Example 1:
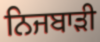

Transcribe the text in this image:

ਨਿਜਬਾੜੀ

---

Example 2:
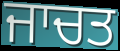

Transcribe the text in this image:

ਜਾਚਤ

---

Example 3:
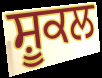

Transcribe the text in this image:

ਸ਼ੂਕਲ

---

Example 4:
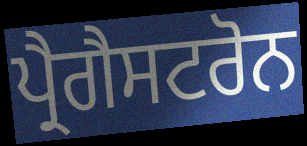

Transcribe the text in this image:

ਪ੍ਰੈਗੈਸਟਰੋਨ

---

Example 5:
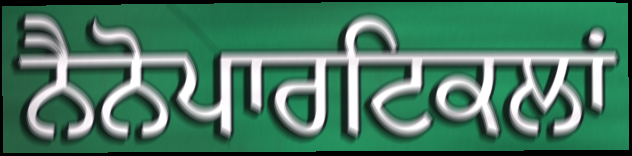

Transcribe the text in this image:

ਨੈਨੋਪਾਰਟਿਕਲਾਂ